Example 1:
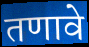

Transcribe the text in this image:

तणावे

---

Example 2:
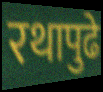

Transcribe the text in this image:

रथापुढे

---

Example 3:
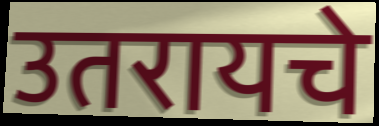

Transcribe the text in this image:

उतरायचे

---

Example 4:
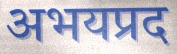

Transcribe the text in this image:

अभयप्रद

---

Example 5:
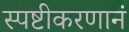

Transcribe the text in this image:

स्पष्टीकरणानं